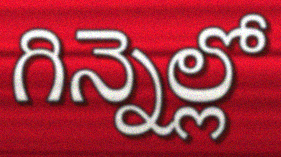
గిన్నెల్లో